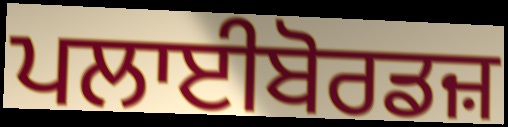
ਪਲਾਈਬੋਰਡਜ਼